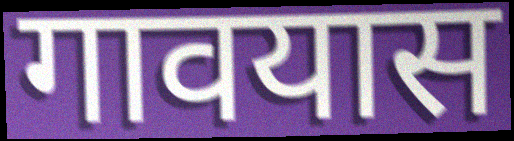
गावयास